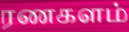
ரணகளம்